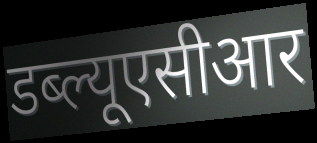
डब्ल्यूएसीआर